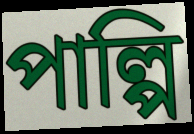
পাল্পি